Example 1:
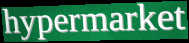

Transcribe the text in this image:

hypermarket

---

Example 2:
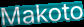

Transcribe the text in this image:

Makoto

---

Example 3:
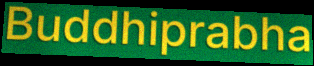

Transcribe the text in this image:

Buddhiprabha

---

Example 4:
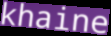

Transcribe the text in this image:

khaine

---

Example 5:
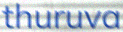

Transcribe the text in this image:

thuruva